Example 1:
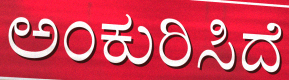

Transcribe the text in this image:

ಅಂಕುರಿಸಿದೆ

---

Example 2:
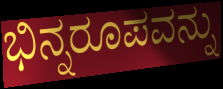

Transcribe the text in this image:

ಭಿನ್ನರೂಪವನ್ನು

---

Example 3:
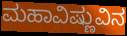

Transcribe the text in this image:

ಮಹಾವಿಷ್ಣುವಿನ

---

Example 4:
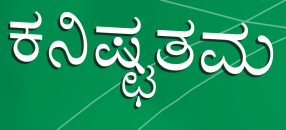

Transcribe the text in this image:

ಕನಿಷ್ಟತಮ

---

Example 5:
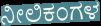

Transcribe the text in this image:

ನೀಲಿಕಂಗಳ